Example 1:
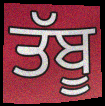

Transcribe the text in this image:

ਤੱਬੂ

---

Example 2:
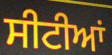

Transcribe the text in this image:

ਸੀਟੀਆਂ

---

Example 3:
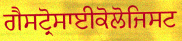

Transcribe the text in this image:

ਗੈਸਟ੍ਰੋਸਾਈਕੋਲੋਜਿਸਟ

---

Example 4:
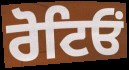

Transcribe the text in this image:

ਰੋਟਿਓਂ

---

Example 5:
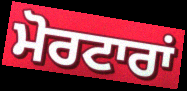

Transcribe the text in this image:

ਮੋਰਟਾਰਾਂ